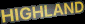
HIGHLAND